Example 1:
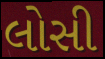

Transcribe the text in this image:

લોસી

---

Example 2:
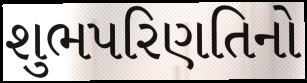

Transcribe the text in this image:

શુભપરિણતિનો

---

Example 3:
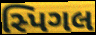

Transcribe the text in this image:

સ્પિગલ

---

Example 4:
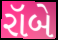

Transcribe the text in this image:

રૉબે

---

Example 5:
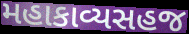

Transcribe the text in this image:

મહાકાવ્યસહજ